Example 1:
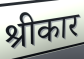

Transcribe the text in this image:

श्रीकार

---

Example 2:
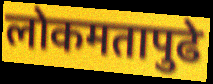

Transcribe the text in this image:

लोकमतापुढे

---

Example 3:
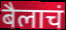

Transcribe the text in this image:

बैलाचं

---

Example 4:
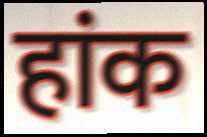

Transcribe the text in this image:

हांक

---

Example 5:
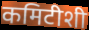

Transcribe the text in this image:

कमिटीशी